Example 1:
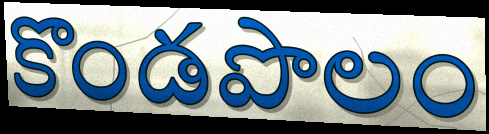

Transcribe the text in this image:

కొండపొలం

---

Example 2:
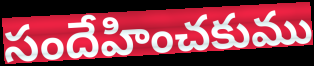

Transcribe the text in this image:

సందేహించకుము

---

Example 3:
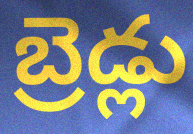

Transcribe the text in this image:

బ్రెడ్లు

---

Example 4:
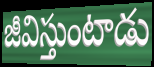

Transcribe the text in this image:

జీవిస్తుంటాడు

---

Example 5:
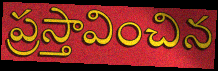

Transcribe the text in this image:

ప్రస్తావించిన